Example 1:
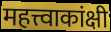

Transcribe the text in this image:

महत्त्वाकांक्षी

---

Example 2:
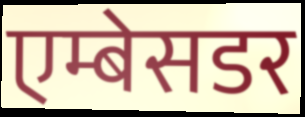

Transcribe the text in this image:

एम्‍बेसडर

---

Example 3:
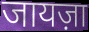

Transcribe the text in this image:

जायज़ा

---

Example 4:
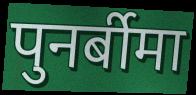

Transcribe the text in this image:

पुनर्बीमा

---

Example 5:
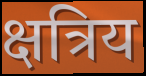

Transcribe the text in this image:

क्षत्रिय